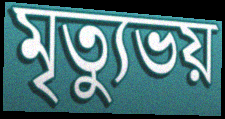
মৃত্যুভয়